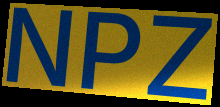
NPZ